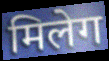
मिलेग